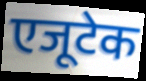
एजूटेक